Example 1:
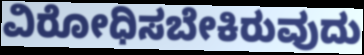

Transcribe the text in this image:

ವಿರೋಧಿಸಬೇಕಿರುವುದು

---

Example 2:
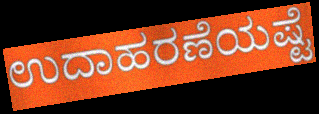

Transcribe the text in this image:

ಉದಾಹರಣೆಯಷ್ಟೆ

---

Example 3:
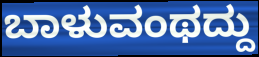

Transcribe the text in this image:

ಬಾಳುವಂಥದ್ದು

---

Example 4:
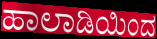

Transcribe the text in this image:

ಹಾಲಾಡಿಯಿಂದ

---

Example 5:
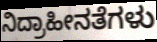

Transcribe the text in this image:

ನಿದ್ರಾಹೀನತೆಗಳು